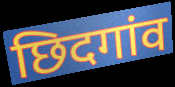
छिदगांव